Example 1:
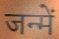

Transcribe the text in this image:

जन्में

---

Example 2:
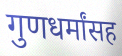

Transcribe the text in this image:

गुणधर्मांसह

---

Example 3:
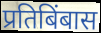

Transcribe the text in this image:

प्रतिबिंबास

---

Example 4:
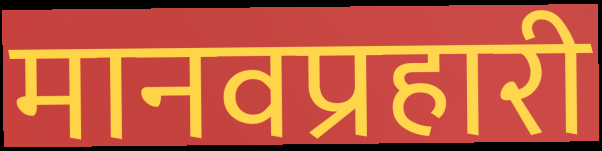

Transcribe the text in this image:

मानवप्रहारी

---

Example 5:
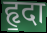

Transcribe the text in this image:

हृ॒दा